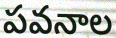
పవనాల